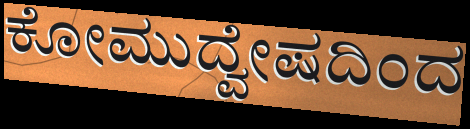
ಕೋಮುದ್ವೇಷದಿಂದ